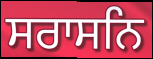
ਸਰਾਸਨਿ